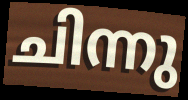
ചിന്നു